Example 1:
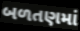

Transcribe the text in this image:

બળતણમાં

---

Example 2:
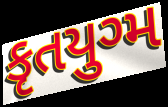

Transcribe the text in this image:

કૃતયુગ્મ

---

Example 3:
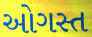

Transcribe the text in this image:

ઓગસ્ત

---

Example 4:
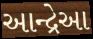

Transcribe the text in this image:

આન્દ્રેઆ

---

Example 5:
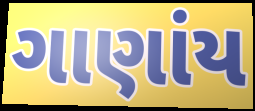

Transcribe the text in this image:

ગાણાંય